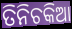
ତିନିଚକିଆ